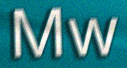
Mw